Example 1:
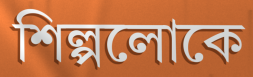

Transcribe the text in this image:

শিল্পলোকে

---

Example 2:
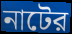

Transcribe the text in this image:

নাটের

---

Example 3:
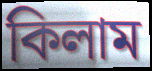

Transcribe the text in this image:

কিলাম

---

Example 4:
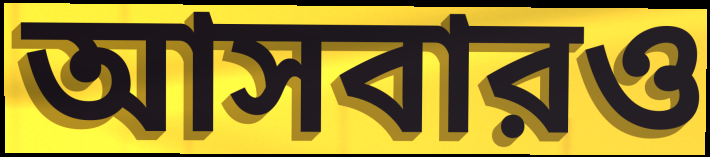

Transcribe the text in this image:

আসবারও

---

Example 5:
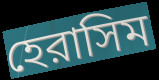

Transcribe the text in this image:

হেরাসিম